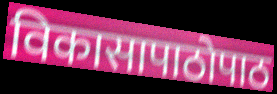
विकासापाठोपाठ